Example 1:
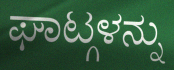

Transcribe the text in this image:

ಘಾಟ್ಗಳನ್ನು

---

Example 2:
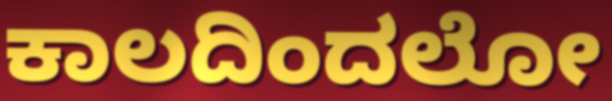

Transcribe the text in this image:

ಕಾಲದಿಂದಲೋ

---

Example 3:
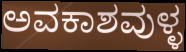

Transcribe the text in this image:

ಅವಕಾಶವುಳ್ಳ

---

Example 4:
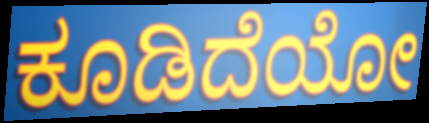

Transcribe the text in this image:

ಕೂಡಿದೆಯೋ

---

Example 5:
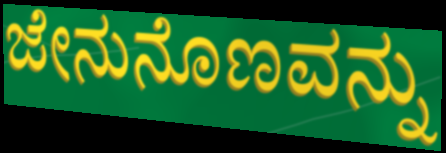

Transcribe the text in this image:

ಜೇನುನೊಣವನ್ನು